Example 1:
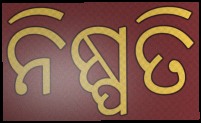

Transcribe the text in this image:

ନିଷ୍ପତି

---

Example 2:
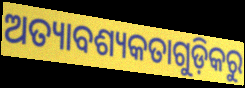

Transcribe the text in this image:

ଅତ୍ୟାବଶ୍ୟକତାଗୁଡ଼ିକରୁ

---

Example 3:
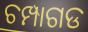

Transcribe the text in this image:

ଚମ୍ପାଗଡ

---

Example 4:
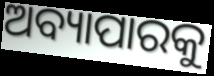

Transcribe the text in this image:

ଅବ୍ୟାପାରକୁ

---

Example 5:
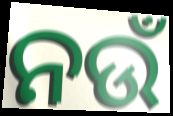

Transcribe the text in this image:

ନଉଁ